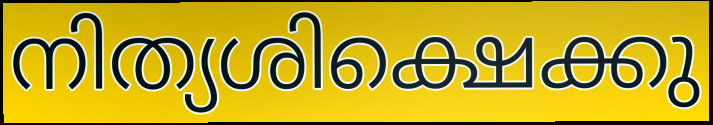
നിത്യശിക്ഷെക്കു